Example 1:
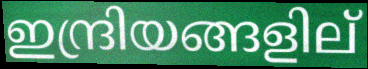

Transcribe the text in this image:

ഇന്ദ്രിയങ്ങളില്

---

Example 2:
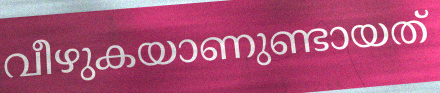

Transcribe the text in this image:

വീഴുകയാണുണ്ടായത്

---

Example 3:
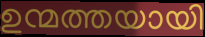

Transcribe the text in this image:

ഉന്മത്തയായി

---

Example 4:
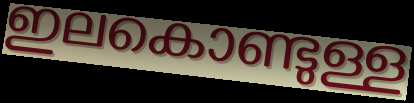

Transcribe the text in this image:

ഇലകൊണ്ടുള്ള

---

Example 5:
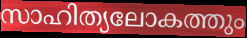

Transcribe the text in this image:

സാഹിത്യലോകത്തും